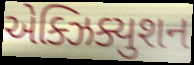
એક્ઝિક્યુશન